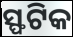
ସ୍ଫଟିକ